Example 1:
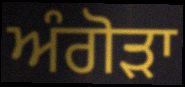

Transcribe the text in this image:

ਅੰਗੋੜਾ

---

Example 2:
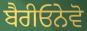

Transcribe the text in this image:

ਬੈਰੀਓਨੇਵੋ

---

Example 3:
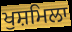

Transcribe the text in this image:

ਖੁਸ਼ਮਿਲਾ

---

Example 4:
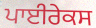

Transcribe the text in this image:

ਪਾਈਰੇਕਸ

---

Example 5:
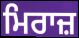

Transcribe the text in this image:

ਮਿਰਾਜ਼